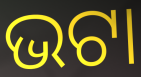
ଭଟା